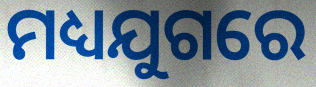
ମଧ୍ୟଯୁଗରେ